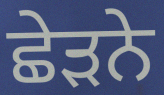
ਛੇੜਨੇ